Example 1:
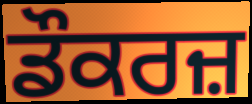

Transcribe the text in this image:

ਡੌਕਰਜ਼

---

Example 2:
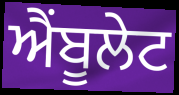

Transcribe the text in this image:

ਐਂਬੂਲੇਟ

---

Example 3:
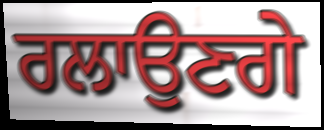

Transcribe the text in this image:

ਰਲਾਉਣਗੇ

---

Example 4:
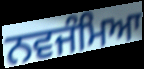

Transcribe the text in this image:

ਨਵਜੰਮਿਆ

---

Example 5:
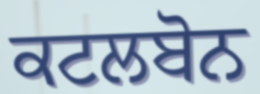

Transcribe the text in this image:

ਕਟਲਬੋਨ